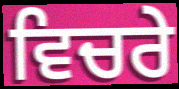
ਵਿਚਰੇ